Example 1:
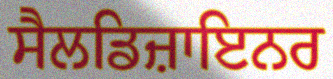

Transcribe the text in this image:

ਸੈਲਡਿਜ਼ਾਇਨਰ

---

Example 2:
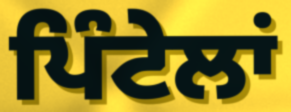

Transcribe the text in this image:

ਪਿੰਟੇਲਾਂ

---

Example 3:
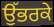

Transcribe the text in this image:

ਉੱਭਰਕੇ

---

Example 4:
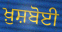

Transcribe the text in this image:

ਖ਼ੁਸ਼ਬੋਈ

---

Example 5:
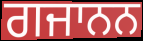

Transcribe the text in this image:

ਗਜਾਨਨ